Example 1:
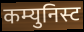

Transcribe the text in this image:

कम्युनिस्ट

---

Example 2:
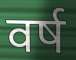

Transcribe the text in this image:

वर्ष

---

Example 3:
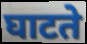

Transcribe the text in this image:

घाटते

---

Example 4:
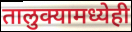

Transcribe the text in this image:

तालुक्यामध्येही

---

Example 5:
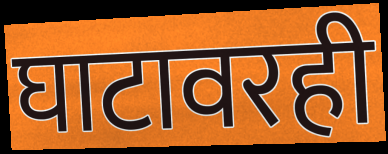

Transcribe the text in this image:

घाटावरही